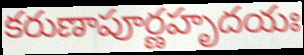
కరుణాపూర్ణహృదయః